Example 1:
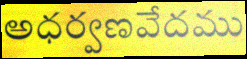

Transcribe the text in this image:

అధర్వణవేదము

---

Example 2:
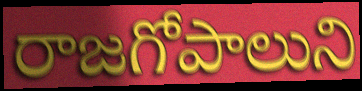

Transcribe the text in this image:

రాజగోపాలుని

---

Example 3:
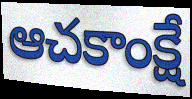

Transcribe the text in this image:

ఆచకాంక్షే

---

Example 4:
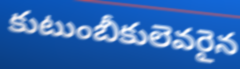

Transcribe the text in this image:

కుటుంబీకులెవరైన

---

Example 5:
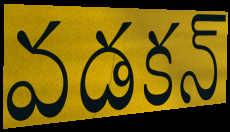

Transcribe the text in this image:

వడకన్